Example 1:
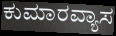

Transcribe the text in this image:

ಕುಮಾರವ್ಯಾಸ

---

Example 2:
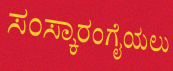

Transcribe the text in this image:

ಸಂಸ್ಕಾರಂಗೈಯಲು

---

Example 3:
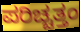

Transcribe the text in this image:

ಪರಿಚ್ಚತ್ತಂ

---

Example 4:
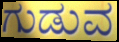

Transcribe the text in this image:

ಗುಡುವ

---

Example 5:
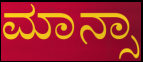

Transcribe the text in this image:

ಮಾನ್ಸಾ